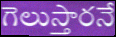
గెలుస్తారనే